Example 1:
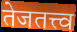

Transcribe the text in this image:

तेजतत्त्व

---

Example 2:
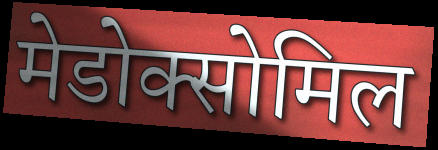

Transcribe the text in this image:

मेडोक्सोमिल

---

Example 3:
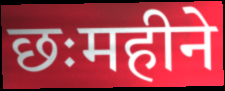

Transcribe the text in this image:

छःमहीने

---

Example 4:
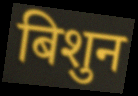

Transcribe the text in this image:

बिशुन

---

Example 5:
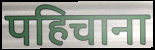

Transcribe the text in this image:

पहिचाना